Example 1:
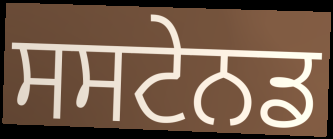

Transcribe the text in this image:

ਸਸਟੇਨਡ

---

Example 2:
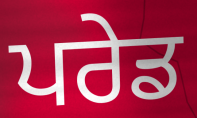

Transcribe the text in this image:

ਪਰੇਡ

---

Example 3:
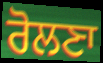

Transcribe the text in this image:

ਰੋਲਣਾ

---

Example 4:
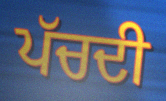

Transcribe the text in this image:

ਪੱਚਦੀ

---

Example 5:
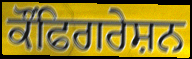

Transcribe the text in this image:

ਕੌਂਫਿਗਰੇਸ਼ਨ